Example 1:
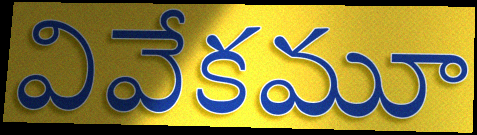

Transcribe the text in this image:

వివేకమూ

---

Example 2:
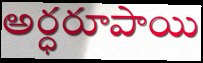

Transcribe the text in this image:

అర్ధరూపాయి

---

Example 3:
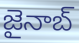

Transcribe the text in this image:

జైనాబ్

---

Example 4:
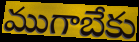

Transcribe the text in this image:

ముగాబేకు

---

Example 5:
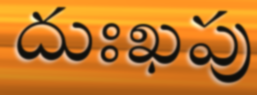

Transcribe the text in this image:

దుఃఖపు